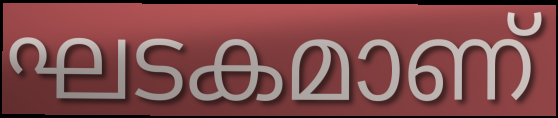
ഘടകമാണ്